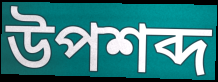
উপশব্দ